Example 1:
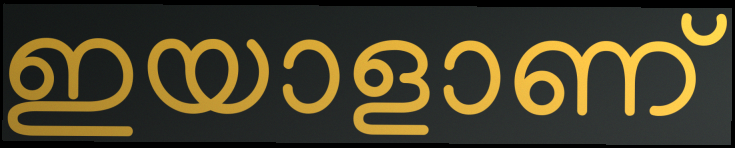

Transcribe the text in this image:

ഇയാളാണ്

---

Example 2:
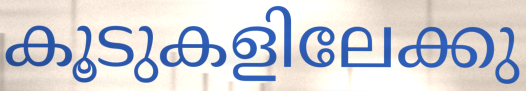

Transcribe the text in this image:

കൂടുകളിലേക്കു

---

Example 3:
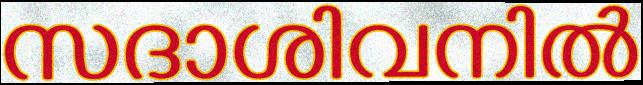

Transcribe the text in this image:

സദാശിവനിൽ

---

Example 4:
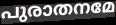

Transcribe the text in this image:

പുരാതനമേ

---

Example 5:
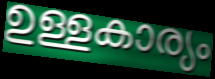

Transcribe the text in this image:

ഉള്ളകാര്യം